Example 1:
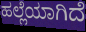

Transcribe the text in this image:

ಹಲ್ಲೆಯಾಗಿದೆ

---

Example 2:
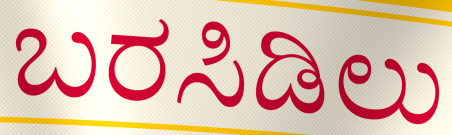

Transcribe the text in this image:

ಬರಸಿಡಿಲು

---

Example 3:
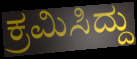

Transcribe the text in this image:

ಕ್ರಮಿಸಿದ್ದು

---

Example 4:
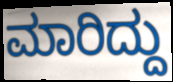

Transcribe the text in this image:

ಮಾರಿದ್ದು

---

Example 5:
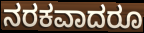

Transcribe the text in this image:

ನರಕವಾದರೂ